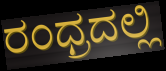
ರಂಧ್ರದಲ್ಲಿ